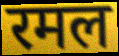
रमल